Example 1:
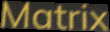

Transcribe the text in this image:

Matrix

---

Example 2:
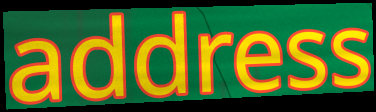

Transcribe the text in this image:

address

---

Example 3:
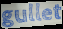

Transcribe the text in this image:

gullet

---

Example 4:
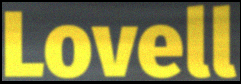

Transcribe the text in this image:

Lovell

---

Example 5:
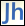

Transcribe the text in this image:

Jh